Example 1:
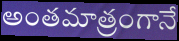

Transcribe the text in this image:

అంతమాత్రంగానే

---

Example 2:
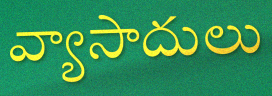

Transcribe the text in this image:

వ్యాసాదులు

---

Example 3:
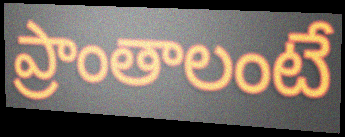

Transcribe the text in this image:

ప్రాంతాలంటే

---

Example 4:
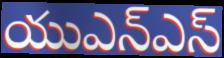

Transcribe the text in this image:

యుఎన్ఎస్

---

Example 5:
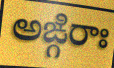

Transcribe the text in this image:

అఙ్గిరాః